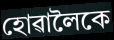
হোৱালৈকে